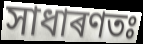
সাধাৰণতঃ